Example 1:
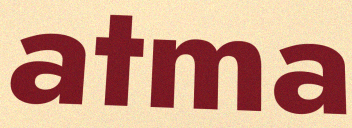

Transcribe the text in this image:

atma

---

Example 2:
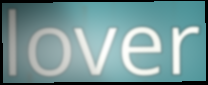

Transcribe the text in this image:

lover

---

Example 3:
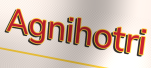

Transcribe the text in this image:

Agnihotri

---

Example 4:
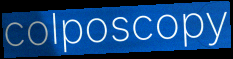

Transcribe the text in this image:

colposcopy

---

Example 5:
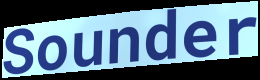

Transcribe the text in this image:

Sounder